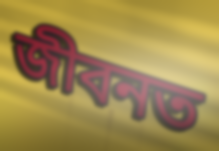
জীবনত